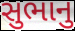
સુભાનુ